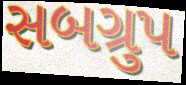
સબગ્રુપ